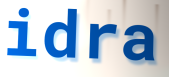
idra